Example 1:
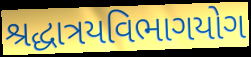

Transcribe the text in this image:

શ્રદ્ધાત્રયવિભાગયોગ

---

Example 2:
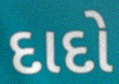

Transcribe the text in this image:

દાદો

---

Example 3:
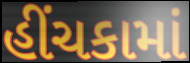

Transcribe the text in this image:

હીંચકામાં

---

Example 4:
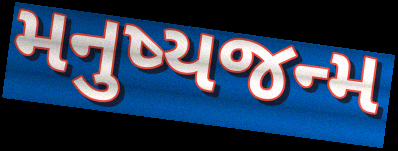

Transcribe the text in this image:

મનુષ્યજન્મ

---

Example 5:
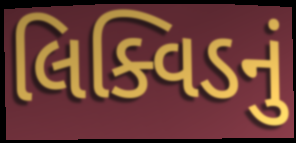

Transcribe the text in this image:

લિક્વિડનું